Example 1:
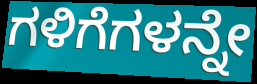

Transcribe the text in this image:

ಗಳಿಗೆಗಳನ್ನೇ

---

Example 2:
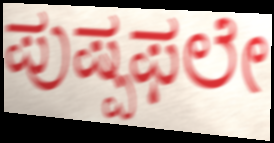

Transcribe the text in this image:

ಪುಷ್ಪಫಲೇ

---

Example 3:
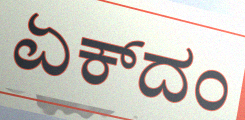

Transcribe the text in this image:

ಏಕ್‌ದಂ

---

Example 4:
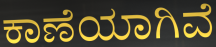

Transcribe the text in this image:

ಕಾಣೆಯಾಗಿವೆ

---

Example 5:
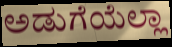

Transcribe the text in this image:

ಅಡುಗೆಯೆಲ್ಲಾ